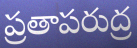
ప్రతాపరుద్ర